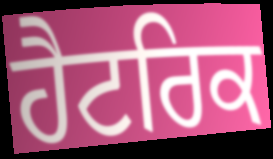
ਹੈਟਰਿਕ